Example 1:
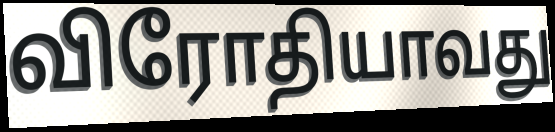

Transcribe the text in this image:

விரோதியாவது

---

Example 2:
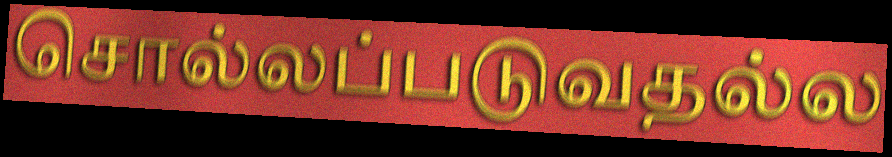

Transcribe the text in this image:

சொல்லப்படுவதல்ல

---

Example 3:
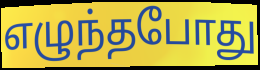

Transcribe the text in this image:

எழுந்தபோது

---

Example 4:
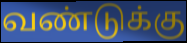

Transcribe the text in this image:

வண்டுக்கு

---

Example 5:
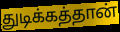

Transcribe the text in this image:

துடிக்கத்தான்